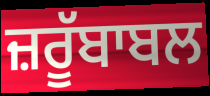
ਜ਼ਰੂੱਬਾਬਲ